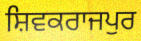
ਸ਼ਿਵਕਰਾਜਪੁਰ